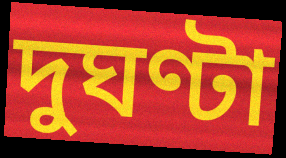
দুঘণ্টা